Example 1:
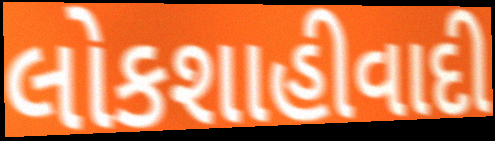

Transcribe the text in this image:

લોકશાહીવાદી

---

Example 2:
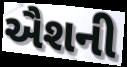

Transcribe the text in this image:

ઐશની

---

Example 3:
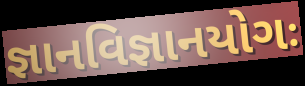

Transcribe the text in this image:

જ્ઞાનવિજ્ઞાનયોગઃ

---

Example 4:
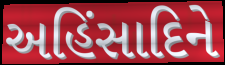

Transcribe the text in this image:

અહિંસાદિને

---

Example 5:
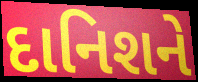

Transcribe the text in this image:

દાનિશને